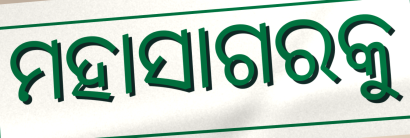
ମହାସାଗରକୁ